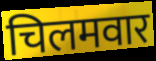
चिलमवार